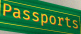
Passports